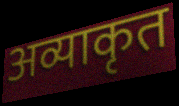
अव्याकृत